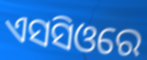
ଏସସିଓରେ